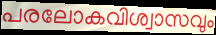
പരലോകവിശ്വാസവും